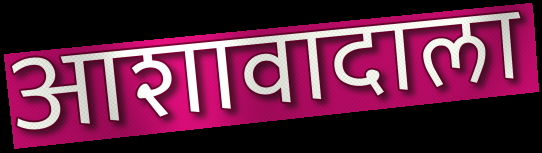
आशावादाला